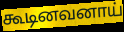
கூடினவனாய்